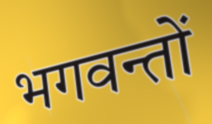
भगवन्तों